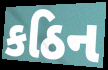
કઠિન